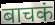
बाचकं